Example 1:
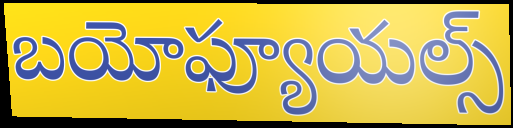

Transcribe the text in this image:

బయోఫ్యూయల్స్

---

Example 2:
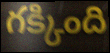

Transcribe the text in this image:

గక్కింది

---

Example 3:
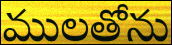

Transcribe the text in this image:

ములతోను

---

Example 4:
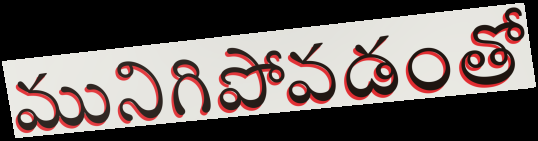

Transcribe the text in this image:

మునిగిపోవడంతో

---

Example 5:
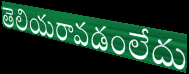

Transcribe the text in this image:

తెలియరావడంలేదు